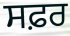
ਸਫ਼ਰ